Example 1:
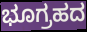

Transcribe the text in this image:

ಭೂಗ್ರಹದ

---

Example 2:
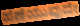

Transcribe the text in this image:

ಹೆಣೆಯುವುದೇ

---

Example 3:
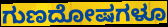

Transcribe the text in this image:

ಗುಣದೋಷಗಳೂ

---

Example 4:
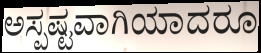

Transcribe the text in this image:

ಅಸ್ಪಷ್ಟವಾಗಿಯಾದರೂ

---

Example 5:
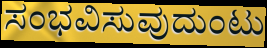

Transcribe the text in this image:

ಸಂಭವಿಸುವುದುಂಟು